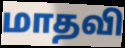
மாதவி